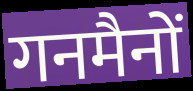
गनमैनों